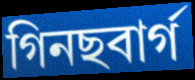
গিনছবাৰ্গ